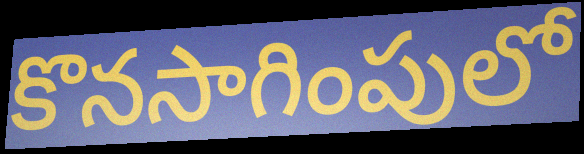
కొనసాగింపులో